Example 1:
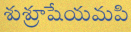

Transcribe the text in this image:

శుశ్రూషేయమపి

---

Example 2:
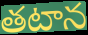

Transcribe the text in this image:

తటాన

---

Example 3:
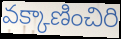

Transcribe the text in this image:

వక్కాణించిరి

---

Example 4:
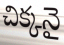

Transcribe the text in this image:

చిక్కనై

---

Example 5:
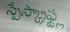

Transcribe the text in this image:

స్పేస్క్రాఫ్ట్ల